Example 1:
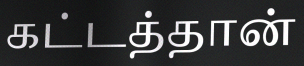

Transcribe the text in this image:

கட்டத்தான்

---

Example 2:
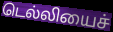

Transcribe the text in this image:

டெல்லியைச்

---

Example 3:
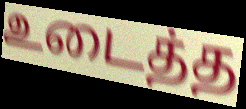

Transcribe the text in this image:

உடைத்த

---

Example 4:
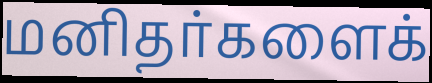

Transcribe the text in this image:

மனிதர்களைக்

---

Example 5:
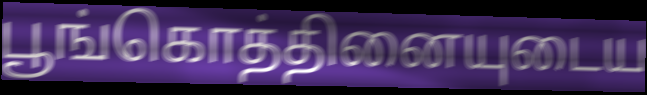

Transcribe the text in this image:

பூங்கொத்தினையுடைய